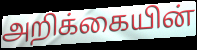
அறிக்கையின்